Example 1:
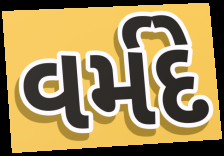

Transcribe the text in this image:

વર્મદે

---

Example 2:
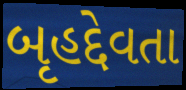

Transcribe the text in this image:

બૃહદ્દેવતા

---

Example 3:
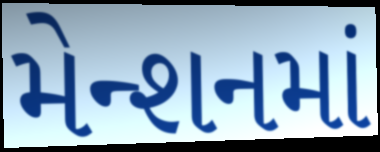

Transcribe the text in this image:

મેન્શનમાં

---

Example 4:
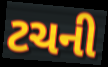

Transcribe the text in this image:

ટચની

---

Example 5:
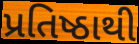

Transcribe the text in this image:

પ્રતિષ્ઠાથી